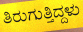
ತಿರುಗುತ್ತಿದ್ದಳು